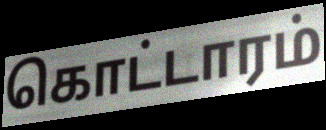
கொட்டாரம்